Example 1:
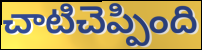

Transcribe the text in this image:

చాటిచెప్పింది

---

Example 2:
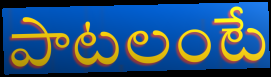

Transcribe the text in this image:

పాటలంటే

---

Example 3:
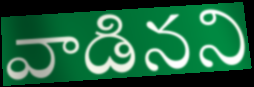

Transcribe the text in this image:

వాడినని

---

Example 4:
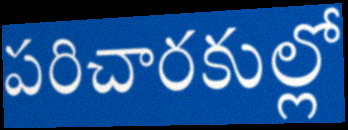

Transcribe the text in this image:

పరిచారకుల్లో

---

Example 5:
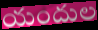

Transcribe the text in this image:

యందుల